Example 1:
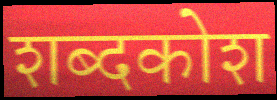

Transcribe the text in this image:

शब्दकोश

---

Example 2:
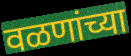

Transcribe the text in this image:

वळणांच्या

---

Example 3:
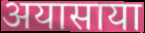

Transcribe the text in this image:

अयासाया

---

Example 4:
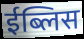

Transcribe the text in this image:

ईब्लिस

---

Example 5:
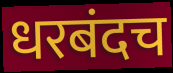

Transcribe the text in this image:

धरबंदच